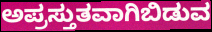
ಅಪ್ರಸ್ತುತವಾಗಿಬಿಡುವ